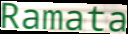
Ramata